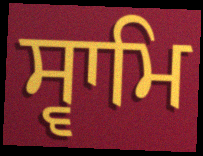
ਸ੍ਵਾਮਿ